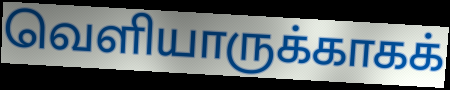
வெளியாருக்காகக்